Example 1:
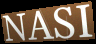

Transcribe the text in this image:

NASI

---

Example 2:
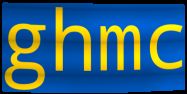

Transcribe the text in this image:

ghmc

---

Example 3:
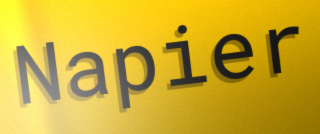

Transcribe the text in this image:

Napier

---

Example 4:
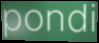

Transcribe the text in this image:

pondi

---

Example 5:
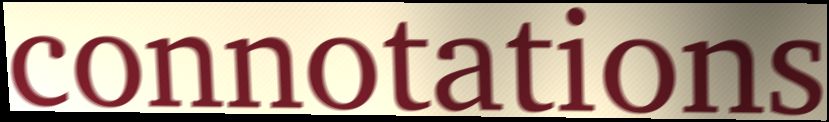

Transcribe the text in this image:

connotations